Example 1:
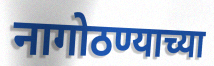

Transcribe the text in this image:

नागोठण्याच्या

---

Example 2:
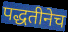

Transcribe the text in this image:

पद्धतीनेच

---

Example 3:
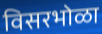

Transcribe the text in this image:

विसरभोळा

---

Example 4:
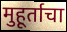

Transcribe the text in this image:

मुहूर्ताचा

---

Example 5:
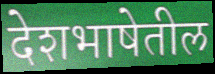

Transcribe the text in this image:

देशभाषेतील